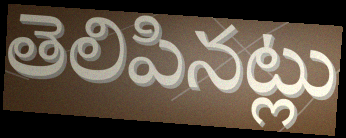
తెలిపినట్లు